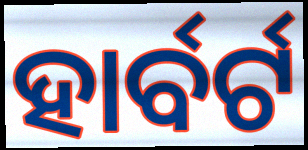
ହାର୍ବର୍ଟ